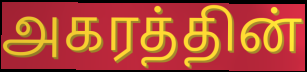
அகரத்தின்